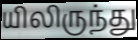
யிலிருந்து